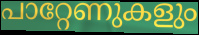
പാറ്റേണുകളും